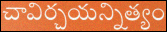
చావిర్చయన్నిత్యం